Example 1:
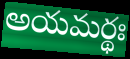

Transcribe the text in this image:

అయమర్థః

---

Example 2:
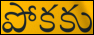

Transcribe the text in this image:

పోకకు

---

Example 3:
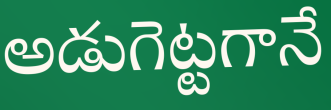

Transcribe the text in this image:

అడుగెట్టగానే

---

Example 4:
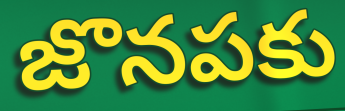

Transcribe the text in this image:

జొనపకు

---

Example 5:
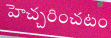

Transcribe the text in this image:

హెచ్చరించటం